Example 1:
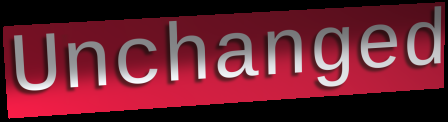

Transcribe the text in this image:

Unchanged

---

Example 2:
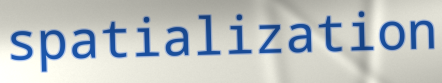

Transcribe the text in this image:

spatialization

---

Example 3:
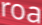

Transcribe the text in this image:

roa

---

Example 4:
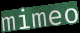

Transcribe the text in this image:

mimeo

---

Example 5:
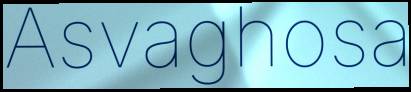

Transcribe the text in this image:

Asvaghosa